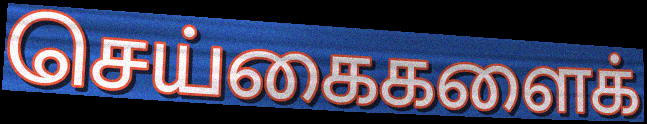
செய்கைகளைக்